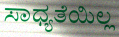
ಸಾಧ್ಯತೆಯಿಲ್ಲ